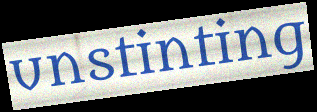
unstinting